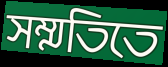
সম্মতিতে